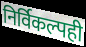
निर्विकल्पही